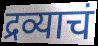
द्रव्याचं